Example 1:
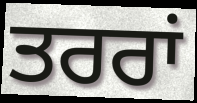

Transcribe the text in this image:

ਤਰਰਾਂ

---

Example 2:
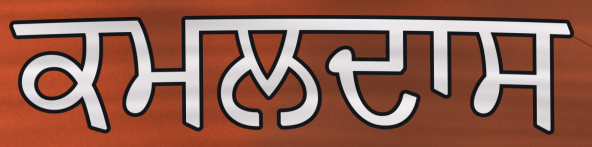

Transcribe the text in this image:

ਕਮਲਦਾਸ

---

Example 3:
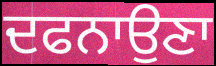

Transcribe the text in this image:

ਦਫਨਾਉਣਾ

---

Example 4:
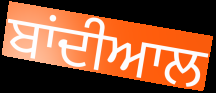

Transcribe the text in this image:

ਬਾਂਦੀਆਲ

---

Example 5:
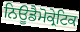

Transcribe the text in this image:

ਨਿਊਡੈਮੋਕ੍ਰੇਟਿਕ